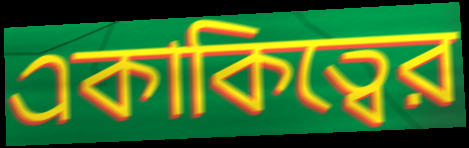
একাকিত্বের